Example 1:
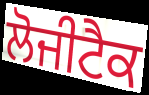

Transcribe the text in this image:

ਲੋਜੀਟੈਕ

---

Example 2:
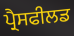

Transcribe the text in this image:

ਪ੍ਰੈਸਫੀਲਡ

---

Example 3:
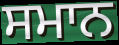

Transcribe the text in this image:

ਸਮਾਨ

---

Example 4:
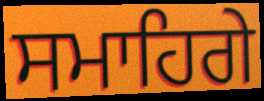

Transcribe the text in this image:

ਸਮਾਹਿਗੇ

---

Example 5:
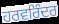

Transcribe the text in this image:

ਹਰਵਰਿੰਦਰ